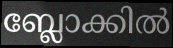
ബ്ലോക്കിൽ